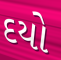
દયો